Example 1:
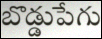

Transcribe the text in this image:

బొడ్డుపేగు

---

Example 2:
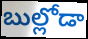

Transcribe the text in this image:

బుల్లోడా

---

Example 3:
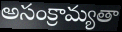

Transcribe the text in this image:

అసంక్రామ్యతా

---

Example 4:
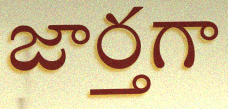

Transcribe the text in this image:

జార్తగా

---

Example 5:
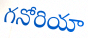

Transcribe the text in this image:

గనోరియా